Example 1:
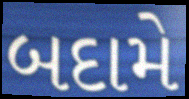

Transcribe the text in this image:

બદામે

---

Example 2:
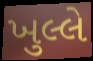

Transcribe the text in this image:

ખુલ્લે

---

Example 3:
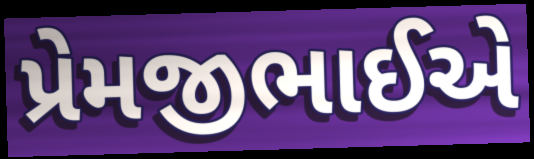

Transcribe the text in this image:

પ્રેમજીભાઈએ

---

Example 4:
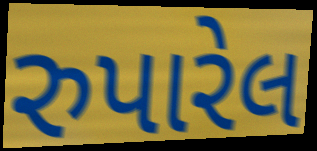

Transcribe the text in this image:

રુપારેલ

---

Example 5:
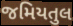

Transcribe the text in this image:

જમિયતુલ